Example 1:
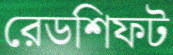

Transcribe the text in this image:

রেডশিফট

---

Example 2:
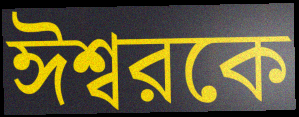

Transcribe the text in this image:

ঈশ্বরকে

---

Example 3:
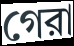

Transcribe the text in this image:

গেরা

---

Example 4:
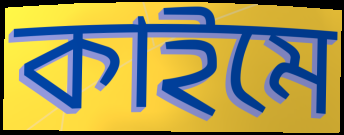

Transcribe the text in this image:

কাইমে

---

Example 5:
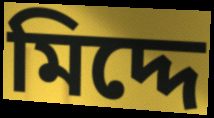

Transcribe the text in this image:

মিদ্দে